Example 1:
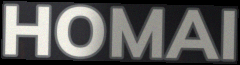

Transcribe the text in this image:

HOMAI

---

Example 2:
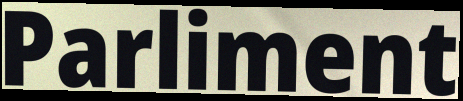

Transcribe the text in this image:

Parliment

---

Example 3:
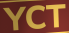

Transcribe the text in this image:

YCT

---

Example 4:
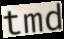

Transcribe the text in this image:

tmd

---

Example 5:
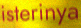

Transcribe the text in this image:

isterinya